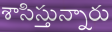
శాసిస్తున్నారు